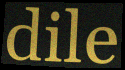
dile